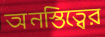
অনস্তিত্বের